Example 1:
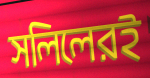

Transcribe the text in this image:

সলিলেরই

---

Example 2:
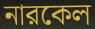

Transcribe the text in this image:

নারকেল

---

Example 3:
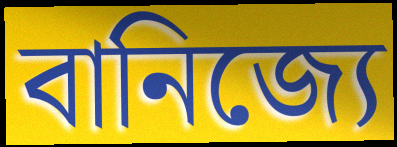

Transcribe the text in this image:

বানিজ্যে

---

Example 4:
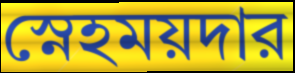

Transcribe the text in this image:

স্নেহময়দার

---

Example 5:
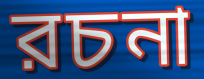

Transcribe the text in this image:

রচনা